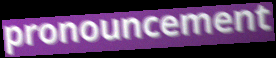
pronouncement